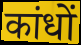
कांधों